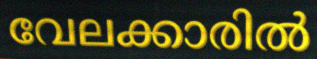
വേലക്കാരിൽ